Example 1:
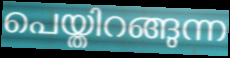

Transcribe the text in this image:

പെയ്തിറങ്ങുന്ന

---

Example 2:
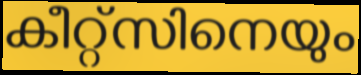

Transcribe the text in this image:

കീറ്റ്സിനെയും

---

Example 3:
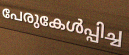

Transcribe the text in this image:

പേരുകേൾപ്പിച്ച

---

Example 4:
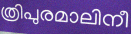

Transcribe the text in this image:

ത്രിപുരമാലിനീ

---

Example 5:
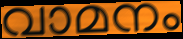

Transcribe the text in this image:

വാമനം